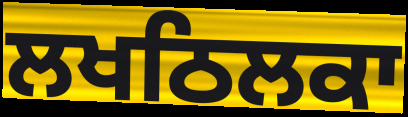
ਲਖਠਿਲਕਾ